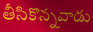
తీసికొన్నవాడు